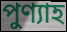
পুণ্যাহ